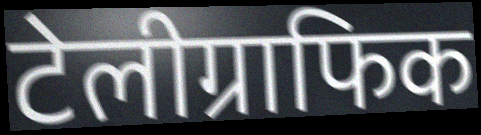
टेलीग्राफिक